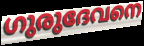
ഗുരുദേവനെ